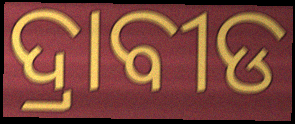
ଦ୍ରାବୀଡ